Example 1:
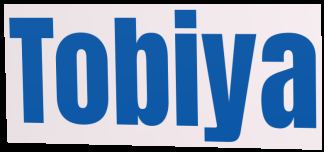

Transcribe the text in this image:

Tobiya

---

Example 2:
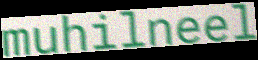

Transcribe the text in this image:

muhilneel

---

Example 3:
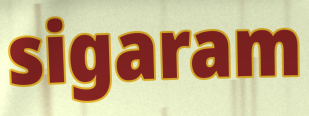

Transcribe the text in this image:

sigaram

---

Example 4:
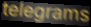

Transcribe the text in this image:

telegrams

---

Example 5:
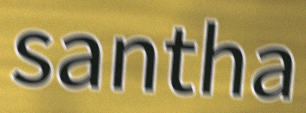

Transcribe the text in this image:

santha